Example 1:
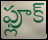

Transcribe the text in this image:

ఫ్లూక్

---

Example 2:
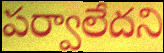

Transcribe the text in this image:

పర్వాలేదని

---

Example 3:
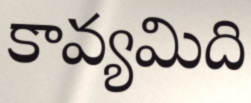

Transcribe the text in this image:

కావ్యమిది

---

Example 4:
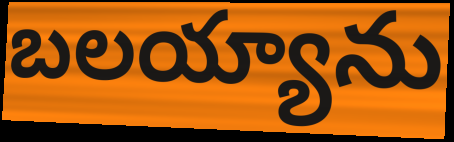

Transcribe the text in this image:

బలయ్యాను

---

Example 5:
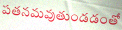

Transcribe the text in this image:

పతనమవుతుండడంతో